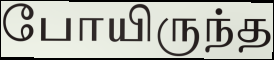
போயிருந்த